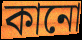
কানো